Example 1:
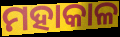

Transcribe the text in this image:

ମହାକାଳ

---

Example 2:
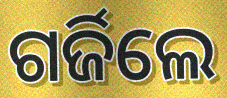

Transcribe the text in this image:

ଗର୍ଜିଲେ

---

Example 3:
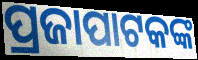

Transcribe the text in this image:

ପ୍ରଜାପାଟକଙ୍କ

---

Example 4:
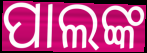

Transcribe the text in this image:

ପାଲଙ୍କ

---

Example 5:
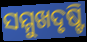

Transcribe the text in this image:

ସମ୍ମୁଖଦୃଷ୍ଟି